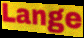
Lange